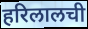
हरिलालची